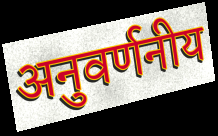
अनुवर्णनीय